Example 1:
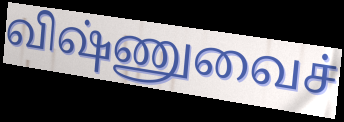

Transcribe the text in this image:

விஷ்ணுவைச்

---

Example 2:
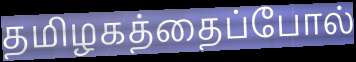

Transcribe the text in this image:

தமிழகத்தைப்போல்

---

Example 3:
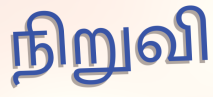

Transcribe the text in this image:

நிறுவி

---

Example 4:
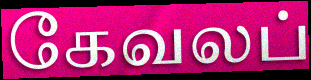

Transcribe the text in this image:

கேவலப்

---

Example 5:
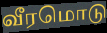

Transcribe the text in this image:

வீரமொடு